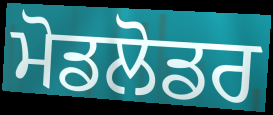
ਮੋਡਲੋਡਰ